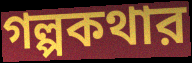
গল্পকথার